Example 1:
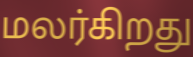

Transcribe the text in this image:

மலர்கிறது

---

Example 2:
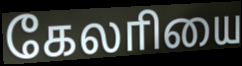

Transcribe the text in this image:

கேலரியை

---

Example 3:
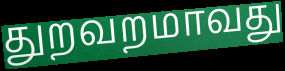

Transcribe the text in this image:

துறவறமாவது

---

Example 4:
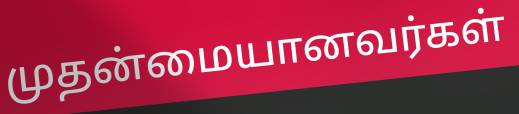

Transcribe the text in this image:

முதன்மையானவர்கள்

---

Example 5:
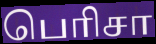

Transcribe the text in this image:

பெரிசா